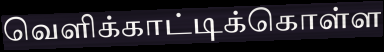
வெளிக்காட்டிக்கொள்ள